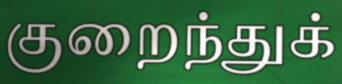
குறைந்துக்